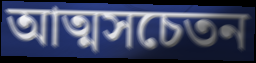
আত্মসচেতন